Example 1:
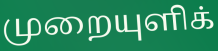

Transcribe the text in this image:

முறையுளிக்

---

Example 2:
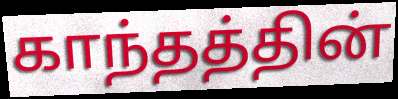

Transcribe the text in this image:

காந்தத்தின்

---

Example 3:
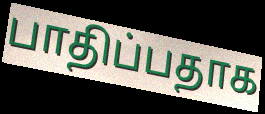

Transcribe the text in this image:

பாதிப்பதாக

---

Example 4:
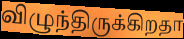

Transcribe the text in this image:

விழுந்திருக்கிறதா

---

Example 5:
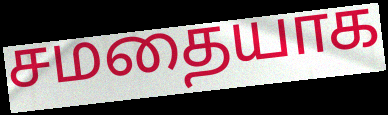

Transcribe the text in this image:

சமதையாக